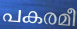
പകരമീ